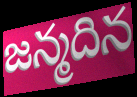
జన్మదిన